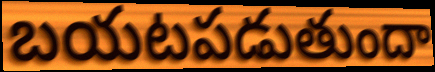
బయటపడుతుందా